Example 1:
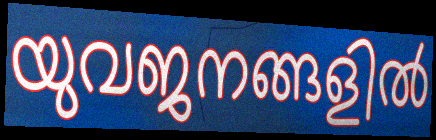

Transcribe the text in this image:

യുവജനങ്ങളിൽ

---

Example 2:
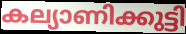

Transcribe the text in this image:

കല്യാണിക്കുട്ടി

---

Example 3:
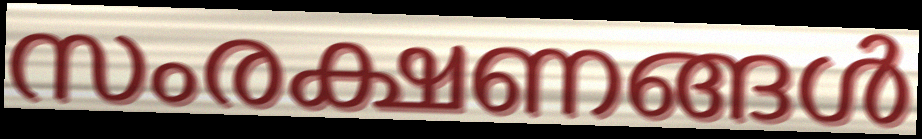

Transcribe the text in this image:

സംരക്ഷണങ്ങൾ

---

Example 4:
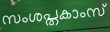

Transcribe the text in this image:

സംശപ്തകാംസ്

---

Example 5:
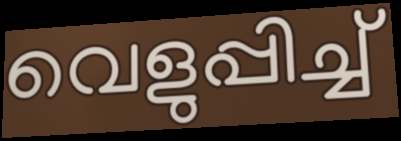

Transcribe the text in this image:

വെളുപ്പിച്ച്